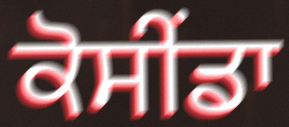
ਕੋਸੀਂਡਾ